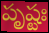
పృష్టః